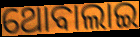
ଥୋବାଲାଇ